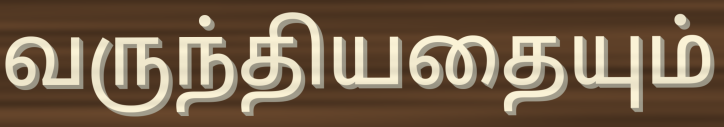
வருந்தியதையும்